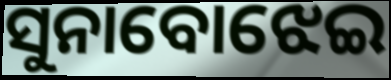
ସୁନାବୋଝେଇ